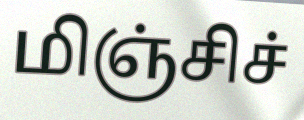
மிஞ்சிச்